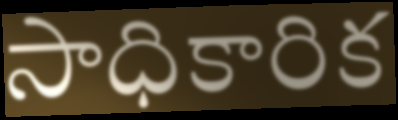
సాధికారిక